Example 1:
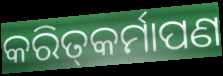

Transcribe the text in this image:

କରିତ୍‌କର୍ମାପଣ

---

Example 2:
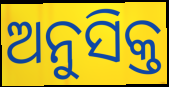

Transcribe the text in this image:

ଅନୁସିକ୍ତ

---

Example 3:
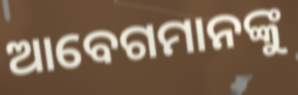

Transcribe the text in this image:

ଆବେଗମାନଙ୍କୁ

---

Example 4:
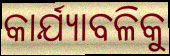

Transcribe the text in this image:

କାର୍ଯ୍ୟାବଳିକୁ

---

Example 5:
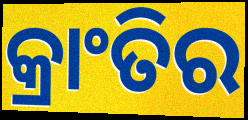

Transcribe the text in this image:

କ୍ରାଂତିର